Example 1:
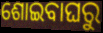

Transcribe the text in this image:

ଶୋଇବାଘରୁ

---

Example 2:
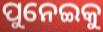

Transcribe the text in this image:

ପୁନେଇକୁ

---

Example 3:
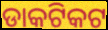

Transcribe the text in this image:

ଡାକଟିକଟ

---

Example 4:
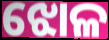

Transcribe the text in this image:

ଝୋଳ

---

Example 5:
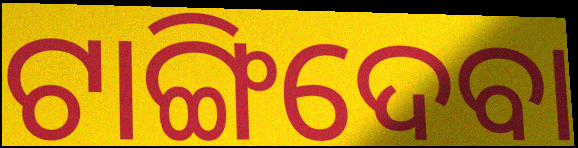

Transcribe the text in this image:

ଟାଙ୍ଗିଦେବା